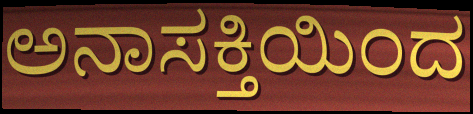
ಅನಾಸಕ್ತಿಯಿಂದ